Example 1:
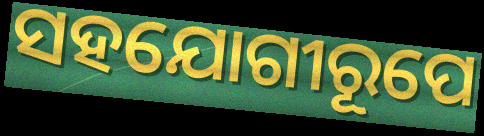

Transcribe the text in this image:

ସହଯୋଗୀରୂପେ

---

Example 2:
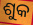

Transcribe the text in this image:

ଶୁକ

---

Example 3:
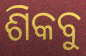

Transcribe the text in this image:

ଶିକବୁ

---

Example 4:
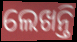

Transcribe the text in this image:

ଲେଖନ୍ତି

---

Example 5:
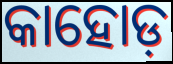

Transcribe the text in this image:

କାହୋଡ଼